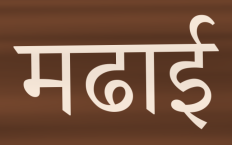
मढाई